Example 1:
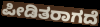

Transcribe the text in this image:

ಪೀಡಿತರಾಗದೆ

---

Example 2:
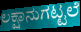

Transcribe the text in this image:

ಲಕ್ಷಾನುಗಟ್ಟಲೆ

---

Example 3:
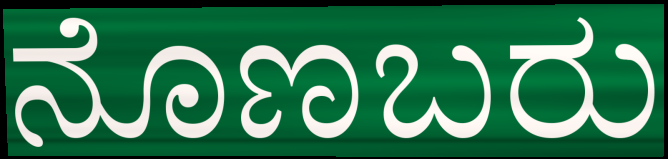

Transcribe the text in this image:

ನೊಣಬರು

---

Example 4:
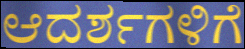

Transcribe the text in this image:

ಆದರ್ಶಗಳಿಗೆ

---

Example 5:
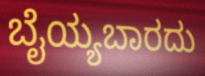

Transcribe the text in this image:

ಬೈಯ್ಯಬಾರದು